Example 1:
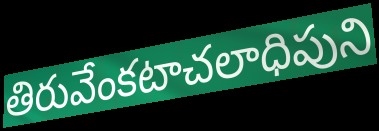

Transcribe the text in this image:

తిరువేంకటాచలాధిపుని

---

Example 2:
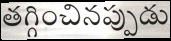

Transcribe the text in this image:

తగ్గించినప్పుడు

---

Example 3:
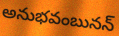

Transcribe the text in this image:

అనుభవంబునన్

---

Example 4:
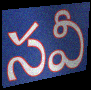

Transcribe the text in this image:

సవీ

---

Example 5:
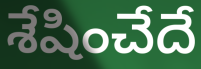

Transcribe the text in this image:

శేషించేదే